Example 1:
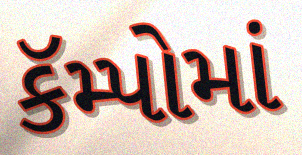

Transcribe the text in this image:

કૅમ્પોમાં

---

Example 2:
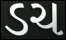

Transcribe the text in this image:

ડચ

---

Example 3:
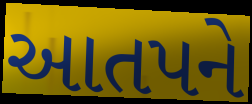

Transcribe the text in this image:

આતપને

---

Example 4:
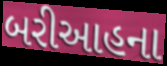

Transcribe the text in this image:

બરીઆહના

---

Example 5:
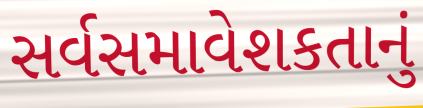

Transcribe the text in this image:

સર્વસમાવેશકતાનું